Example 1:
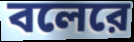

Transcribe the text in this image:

বলেরে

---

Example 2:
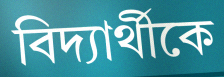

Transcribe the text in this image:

বিদ্যার্থীকে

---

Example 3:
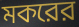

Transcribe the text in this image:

মকরের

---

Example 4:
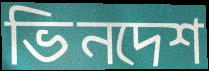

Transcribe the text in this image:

ভিনদেশ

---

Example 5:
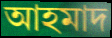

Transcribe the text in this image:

আহমাদ